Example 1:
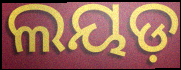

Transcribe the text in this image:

ଲୟଡ଼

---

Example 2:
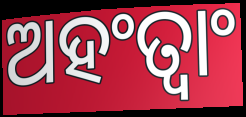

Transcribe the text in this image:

ଅହଂତ୍ୱାଂ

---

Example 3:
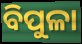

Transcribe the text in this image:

ବିପୁଳା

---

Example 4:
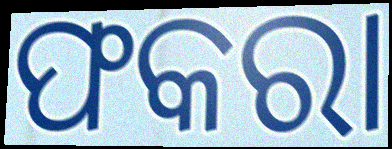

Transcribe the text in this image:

ଫକରା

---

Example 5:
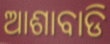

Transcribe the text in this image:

ଆଶାବାଡି